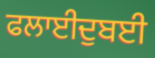
ਫਲਾਈਦੁਬਈ